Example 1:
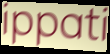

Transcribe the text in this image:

ippati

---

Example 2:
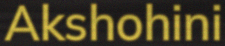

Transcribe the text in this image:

Akshohini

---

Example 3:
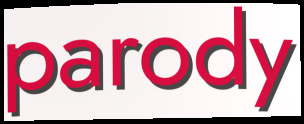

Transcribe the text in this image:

parody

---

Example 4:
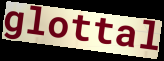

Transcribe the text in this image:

glottal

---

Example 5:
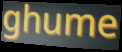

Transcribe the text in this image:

ghume